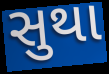
સુથા